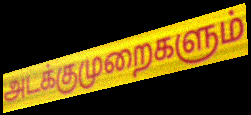
அடக்குமுறைகளும்